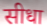
सीधा